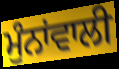
ਮੁੰਨਾਂਵਾਲੀ